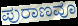
ಪುರಾಣವೂ